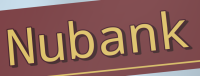
Nubank